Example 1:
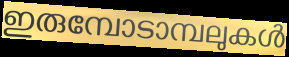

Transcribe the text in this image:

ഇരുമ്പോടാമ്പലുകൾ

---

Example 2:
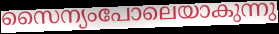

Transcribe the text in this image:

സൈന്യംപോലെയാകുന്നു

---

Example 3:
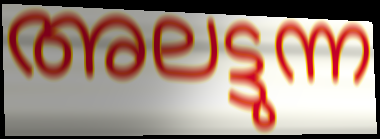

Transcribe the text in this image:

അലട്ടുന്ന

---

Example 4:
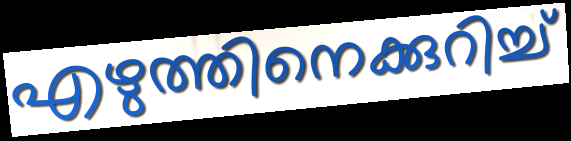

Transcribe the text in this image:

എഴുത്തിനെക്കുറിച്ച്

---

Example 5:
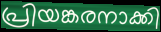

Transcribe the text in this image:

പ്രിയങ്കരനാക്കി